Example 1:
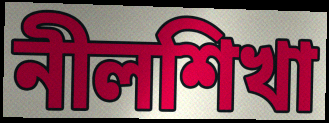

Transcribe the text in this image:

নীলশিখা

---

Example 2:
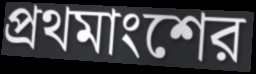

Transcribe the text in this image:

প্রথমাংশের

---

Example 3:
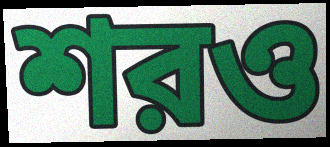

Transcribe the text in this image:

শরও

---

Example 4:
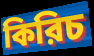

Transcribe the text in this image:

কিরিচ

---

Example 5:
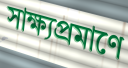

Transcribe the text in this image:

সাক্ষ্যপ্রমাণে